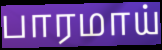
பாரமாய்